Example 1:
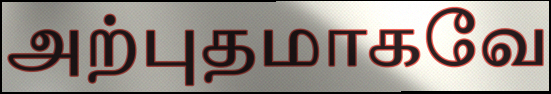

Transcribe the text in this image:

அற்புதமாகவே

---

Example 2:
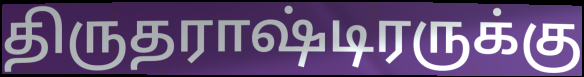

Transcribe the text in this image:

திருதராஷ்டிரருக்கு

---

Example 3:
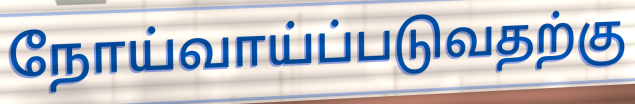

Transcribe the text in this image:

நோய்வாய்ப்படுவதற்கு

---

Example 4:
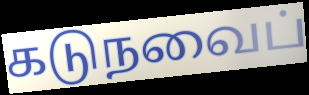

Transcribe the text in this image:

கடுநவைப்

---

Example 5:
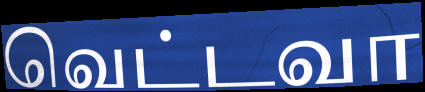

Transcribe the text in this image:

வெட்டவா